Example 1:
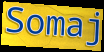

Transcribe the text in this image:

Somaj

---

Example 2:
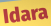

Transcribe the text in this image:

Idara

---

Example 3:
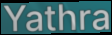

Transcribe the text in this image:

Yathra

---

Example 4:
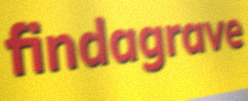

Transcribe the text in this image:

findagrave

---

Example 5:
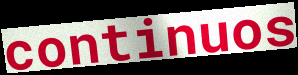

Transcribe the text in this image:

continuos